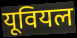
यूवियल